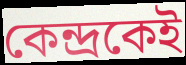
কেন্দ্রকেই